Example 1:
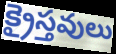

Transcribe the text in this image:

క్రైస్తవులు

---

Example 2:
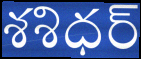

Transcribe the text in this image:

శశిధర్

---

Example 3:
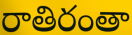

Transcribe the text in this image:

రాతిరంతా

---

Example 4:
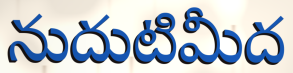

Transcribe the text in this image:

నుదుటిమీద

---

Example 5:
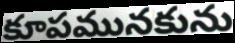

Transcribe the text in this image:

కూపమునకును